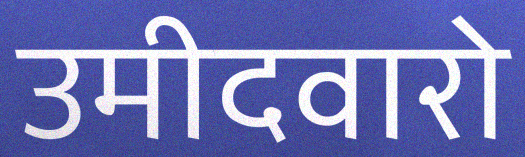
उमीदवारो